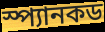
স্প্যানকড